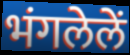
भंगलेलें